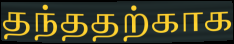
தந்ததற்காக